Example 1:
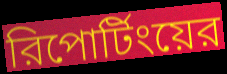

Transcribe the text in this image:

রিপোর্টিংয়ের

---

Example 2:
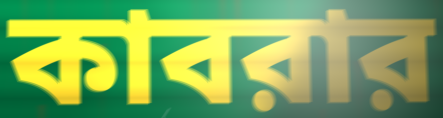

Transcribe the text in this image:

কাবরার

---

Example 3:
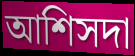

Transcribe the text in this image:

আশিসদা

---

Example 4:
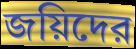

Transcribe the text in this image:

জয়িদের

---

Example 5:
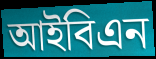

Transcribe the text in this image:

আইবিএন